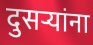
दुसर्‍यांना